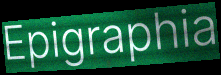
Epigraphia